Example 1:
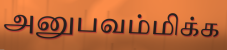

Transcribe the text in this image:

அனுபவம்மிக்க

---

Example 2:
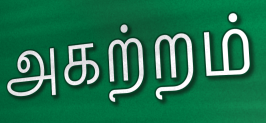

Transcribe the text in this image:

அகற்றம்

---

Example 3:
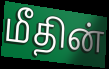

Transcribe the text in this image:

மீதின்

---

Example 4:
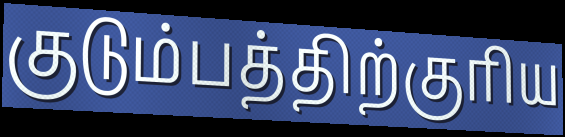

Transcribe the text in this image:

குடும்பத்திற்குரிய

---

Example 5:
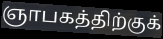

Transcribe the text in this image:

ஞாபகத்திற்குக்